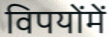
विपयोंमें